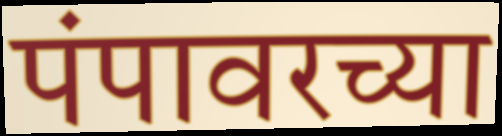
पंपावरच्या